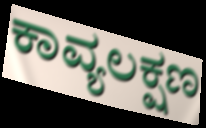
ಕಾವ್ಯಲಕ್ಷಣ